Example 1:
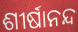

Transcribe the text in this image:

ଶୀର୍ଷାନନ୍ଦ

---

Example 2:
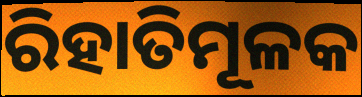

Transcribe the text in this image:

ରିହାତିମୂଳକ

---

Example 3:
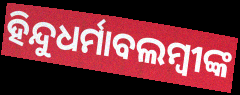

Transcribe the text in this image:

ହିନ୍ଦୁଧର୍ମାବଲମ୍ବୀଙ୍କ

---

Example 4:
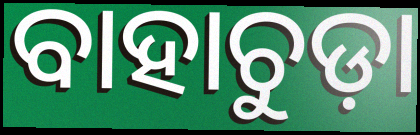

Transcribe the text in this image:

ବାହାଚୁଡ଼ା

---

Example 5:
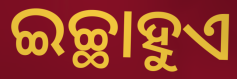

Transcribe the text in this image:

ଇଚ୍ଛାହୁଏ